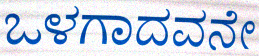
ಒಳಗಾದವನೇ